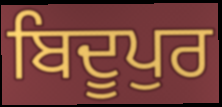
ਬਿਦੂਪੁਰ